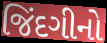
જિંદગીનો